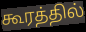
கூரத்தில்